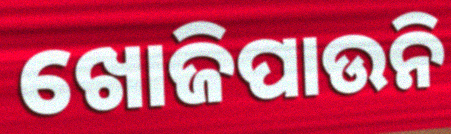
ଖୋଜିପାଉନି